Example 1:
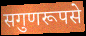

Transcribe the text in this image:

सगुणरूपसे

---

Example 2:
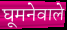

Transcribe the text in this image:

घूमनेवाले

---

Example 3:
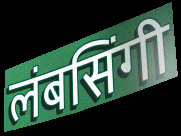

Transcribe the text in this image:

लंबसिंगी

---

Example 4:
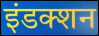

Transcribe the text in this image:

इंडक्शन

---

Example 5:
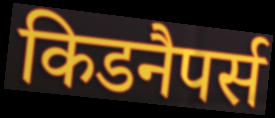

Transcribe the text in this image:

किडनैपर्स